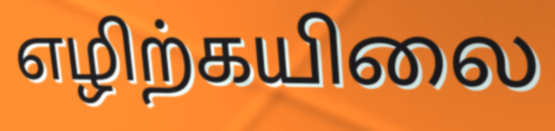
எழிற்கயிலை